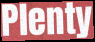
Plenty